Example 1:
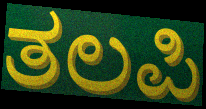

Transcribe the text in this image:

ತಲಪಿ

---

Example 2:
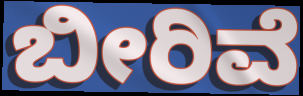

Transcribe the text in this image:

ಬೀರಿವೆ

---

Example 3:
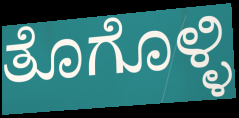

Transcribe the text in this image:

ತೊಗೊಳ್ಳಿ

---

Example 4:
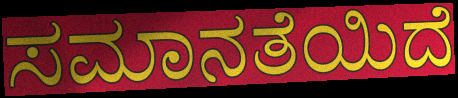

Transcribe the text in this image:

ಸಮಾನತೆಯಿದೆ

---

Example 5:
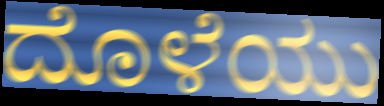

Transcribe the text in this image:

ದೊಳೆಯು